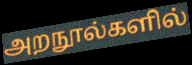
அறநூல்களில்